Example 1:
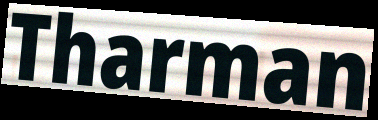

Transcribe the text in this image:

Tharman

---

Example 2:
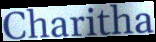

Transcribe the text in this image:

Charitha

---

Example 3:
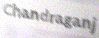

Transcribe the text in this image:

Chandraganj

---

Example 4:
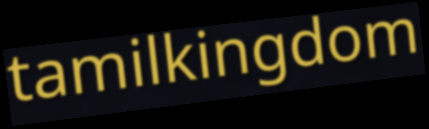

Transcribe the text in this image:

tamilkingdom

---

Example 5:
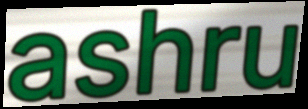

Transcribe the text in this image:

ashru